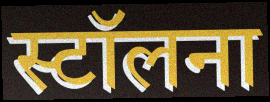
स्टॉलना